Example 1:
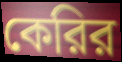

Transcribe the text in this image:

কেরির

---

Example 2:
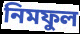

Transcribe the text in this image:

নিমফুল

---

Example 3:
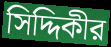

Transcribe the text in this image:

সিদ্দিকীর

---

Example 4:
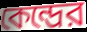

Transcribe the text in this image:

কেন্দ্রের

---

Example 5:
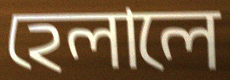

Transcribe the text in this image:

হেলালে